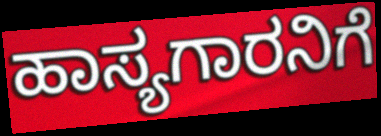
ಹಾಸ್ಯಗಾರನಿಗೆ